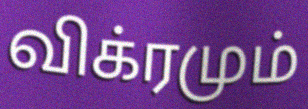
விக்ரமும்